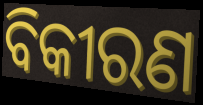
ବିକୀରଣ